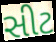
સીટ